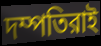
দম্পতিরাই